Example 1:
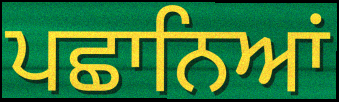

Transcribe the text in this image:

ਪਛਾਨਿਆਂ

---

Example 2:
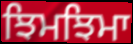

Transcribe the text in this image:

ਝਿਮਝਿਮਾ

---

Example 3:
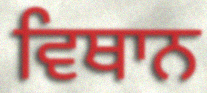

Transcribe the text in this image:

ਵਿਥਾਨ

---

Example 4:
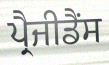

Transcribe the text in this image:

ਪ੍ਰੈਜੀਡੈਂਸ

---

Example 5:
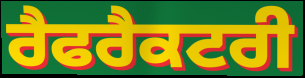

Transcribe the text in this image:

ਰੈਫਰੈਕਟਰੀ